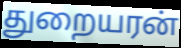
துறையரன்